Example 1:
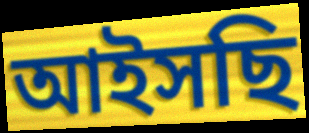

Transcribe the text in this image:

আইসছি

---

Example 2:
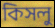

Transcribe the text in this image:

কিসলু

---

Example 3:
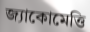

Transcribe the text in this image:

জ্যাকোমেত্তি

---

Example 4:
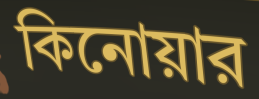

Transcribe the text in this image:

কিনোয়ার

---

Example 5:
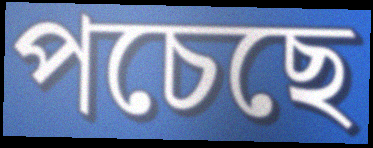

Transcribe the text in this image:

পচেছে